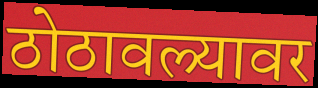
ठोठावल्यावर